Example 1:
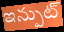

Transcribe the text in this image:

ఇన్పుట్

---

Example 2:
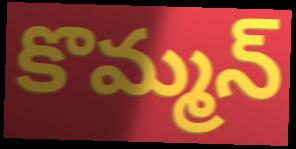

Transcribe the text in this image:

కొమ్మన్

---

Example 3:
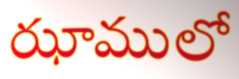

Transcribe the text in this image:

ఝాములో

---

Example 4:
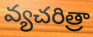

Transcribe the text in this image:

వ్యచరిత్రా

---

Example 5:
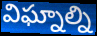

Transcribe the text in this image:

విఘ్నాల్ని